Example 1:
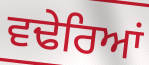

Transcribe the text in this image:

ਵਢੇਰਿਆਂ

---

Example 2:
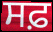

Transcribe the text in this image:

ਸਫ਼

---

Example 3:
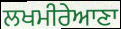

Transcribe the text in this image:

ਲਖਮੀਰੇਆਣਾ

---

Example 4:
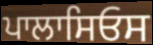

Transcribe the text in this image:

ਪਾਲਾਸਿਓਸ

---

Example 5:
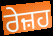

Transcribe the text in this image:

ਰੇਜ਼ਹ